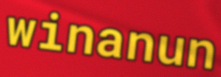
winanun